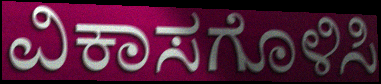
ವಿಕಾಸಗೊಳಿಸಿ